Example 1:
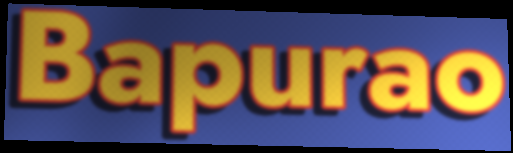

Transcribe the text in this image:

Bapurao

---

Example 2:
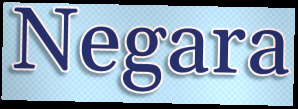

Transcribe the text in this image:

Negara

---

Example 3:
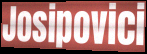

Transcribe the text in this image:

Josipovici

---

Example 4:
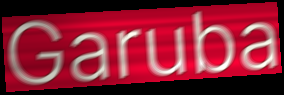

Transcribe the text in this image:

Garuba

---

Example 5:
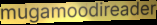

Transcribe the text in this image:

mugamoodireader